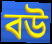
বউ